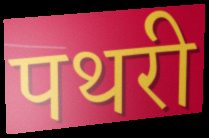
पथरी